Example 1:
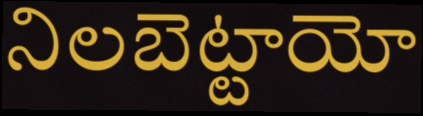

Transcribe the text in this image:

నిలబెట్టాయో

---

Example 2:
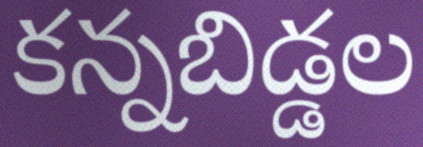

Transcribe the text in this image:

కన్నబిడ్డల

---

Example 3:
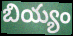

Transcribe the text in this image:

బియ్యం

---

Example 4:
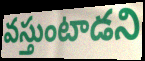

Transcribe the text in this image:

వస్తుంటాడని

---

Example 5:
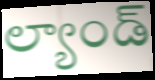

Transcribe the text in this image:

ల్యాండ్